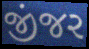
જીંજર